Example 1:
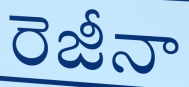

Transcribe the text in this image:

రెజీనా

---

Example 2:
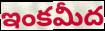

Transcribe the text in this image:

ఇంకమీద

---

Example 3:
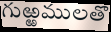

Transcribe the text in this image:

గుఱ్ఱములతొ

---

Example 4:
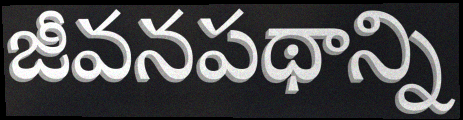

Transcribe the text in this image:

జీవనపథాన్ని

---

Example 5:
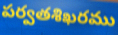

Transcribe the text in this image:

పర్వతశిఖరము